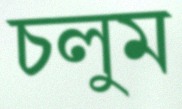
চলুম